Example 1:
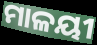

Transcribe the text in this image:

ମାଳୟୀ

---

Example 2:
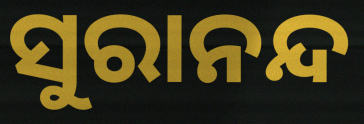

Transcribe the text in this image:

ସୁରାନନ୍ଦ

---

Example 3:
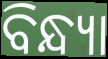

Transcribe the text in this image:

ବିନ୍ଧ୍ୟା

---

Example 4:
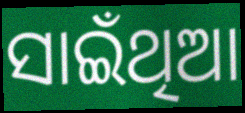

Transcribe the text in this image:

ସାଇଁଥିଆ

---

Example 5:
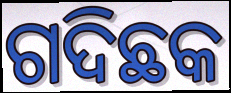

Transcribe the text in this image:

ଗଦିଛକ